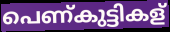
പെണ്കുട്ടികള്